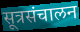
सूत्रसंचालन